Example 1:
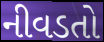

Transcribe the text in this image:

નીવડતો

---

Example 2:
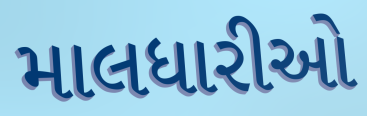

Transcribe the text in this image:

માલધારીઓ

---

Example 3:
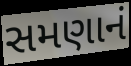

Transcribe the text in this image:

સમણાનં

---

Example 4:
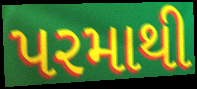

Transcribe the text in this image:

પરમાથી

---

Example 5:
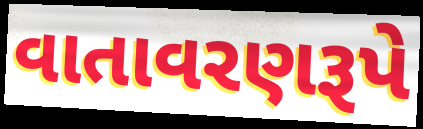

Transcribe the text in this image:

વાતાવરણરૂપે